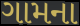
ગામના